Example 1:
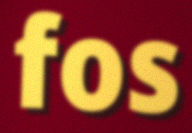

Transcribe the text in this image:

fos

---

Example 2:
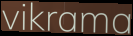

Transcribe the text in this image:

vikrama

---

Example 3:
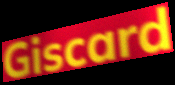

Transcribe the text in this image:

Giscard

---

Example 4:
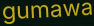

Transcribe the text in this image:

gumawa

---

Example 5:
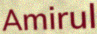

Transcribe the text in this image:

Amirul